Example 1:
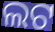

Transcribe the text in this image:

ଲଟ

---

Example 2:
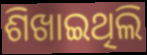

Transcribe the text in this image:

ଶିଖାଇଥିଲି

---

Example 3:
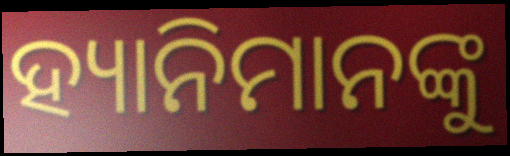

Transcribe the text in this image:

ହ୍ୟାନିମାନଙ୍କୁ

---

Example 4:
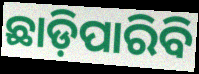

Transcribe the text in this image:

ଛାଡ଼ିପାରିବି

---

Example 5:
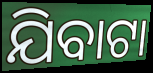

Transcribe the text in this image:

ଯିବାଟା